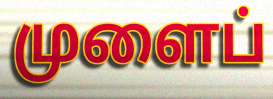
முளைப்